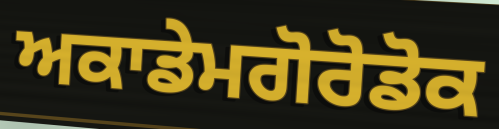
ਅਕਾਡੇਮਗੋਰੋਡੋਕ